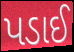
પડાઈ